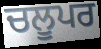
ਚਲੂਪਰ